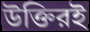
উক্তিরই